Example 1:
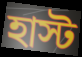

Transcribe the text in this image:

হাস্ট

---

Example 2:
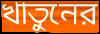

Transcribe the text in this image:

খাতুনের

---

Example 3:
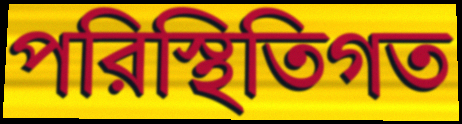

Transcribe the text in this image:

পরিস্থিতিগত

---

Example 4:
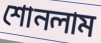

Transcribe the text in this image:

শোনলাম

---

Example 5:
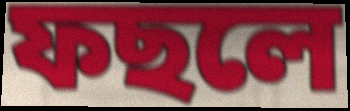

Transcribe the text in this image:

ফছলে